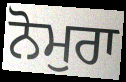
ਨੋਮੁਰਾ